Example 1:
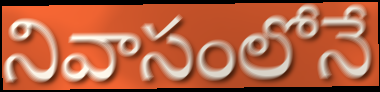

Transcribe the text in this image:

నివాసంలోనే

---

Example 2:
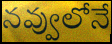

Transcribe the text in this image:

నవ్వులోనే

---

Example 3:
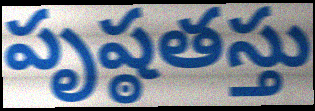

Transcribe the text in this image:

పృష్ఠతస్తు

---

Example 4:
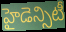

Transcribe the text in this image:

హైడెన్సిటీ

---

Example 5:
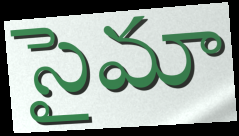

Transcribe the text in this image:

సైమా